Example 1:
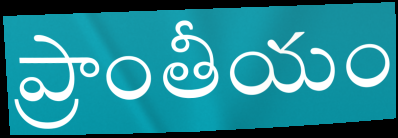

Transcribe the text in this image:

ప్రాంతీయం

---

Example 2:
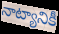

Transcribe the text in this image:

నాట్యానికీ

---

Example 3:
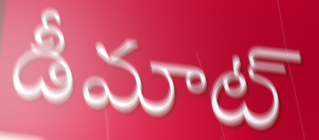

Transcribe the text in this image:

డీమాట్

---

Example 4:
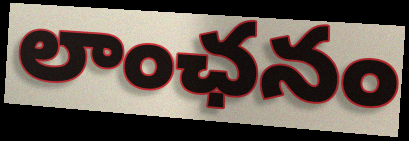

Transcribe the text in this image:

లాంఛనం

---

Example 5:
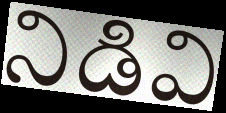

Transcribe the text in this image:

నిడివి